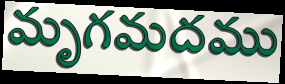
మృగమదము